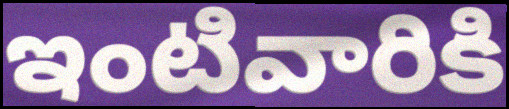
ఇంటివారికి